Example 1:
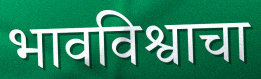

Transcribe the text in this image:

भावविश्वाचा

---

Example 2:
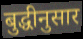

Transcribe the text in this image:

बुद्धीनुसार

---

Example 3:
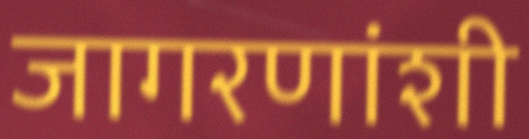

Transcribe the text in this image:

जागरणांशी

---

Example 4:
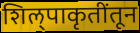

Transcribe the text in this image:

शिल्पाकृतींतून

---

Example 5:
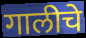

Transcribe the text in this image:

गालीचे